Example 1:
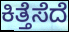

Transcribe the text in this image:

ಕಿತ್ತೆಸೆದೆ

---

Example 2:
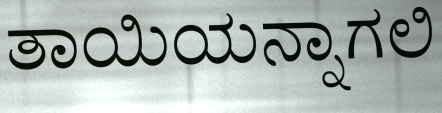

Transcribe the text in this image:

ತಾಯಿಯನ್ನಾಗಲಿ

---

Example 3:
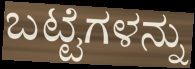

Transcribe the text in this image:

ಬಟ್ಟೆಗಳನ್ನು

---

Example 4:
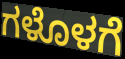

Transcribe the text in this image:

ಗಳೊಳಗೆ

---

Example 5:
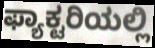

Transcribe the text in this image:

ಫ್ಯಾಕ್ಟರಿಯಲ್ಲಿ